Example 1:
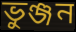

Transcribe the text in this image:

ভুঞ্জন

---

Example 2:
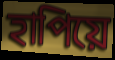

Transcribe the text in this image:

হাপিয়ে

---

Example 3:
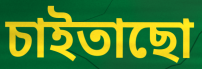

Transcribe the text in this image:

চাইতাছো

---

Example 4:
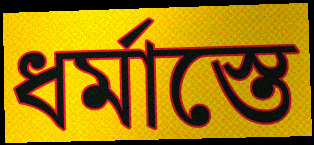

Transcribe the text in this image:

ধর্মাস্তে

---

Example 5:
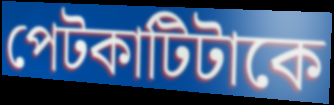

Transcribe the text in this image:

পেটকাটিটাকে